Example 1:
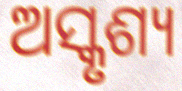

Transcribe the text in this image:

ଅସ୍କୃଶ୍ୟ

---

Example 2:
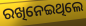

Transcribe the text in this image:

ରଖିନେଇଥିଲେ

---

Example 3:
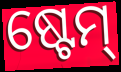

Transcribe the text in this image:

ଷ୍ଟେମ୍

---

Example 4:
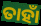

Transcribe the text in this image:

ତାହାଁ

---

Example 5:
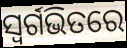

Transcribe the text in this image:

ସ୍ଵର୍ଗଭିତରେ